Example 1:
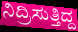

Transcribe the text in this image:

ನಿದ್ರಿಸುತ್ತಿದ್ದ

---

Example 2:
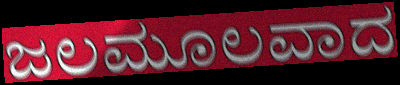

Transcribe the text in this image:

ಜಲಮೂಲವಾದ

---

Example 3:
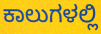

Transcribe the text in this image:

ಕಾಲುಗಳಲ್ಲಿ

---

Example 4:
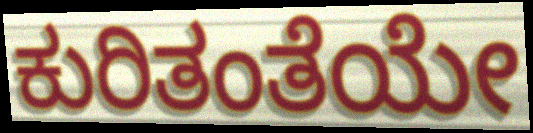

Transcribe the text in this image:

ಕುರಿತಂತೆಯೇ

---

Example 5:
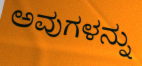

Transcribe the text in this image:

ಅವುಗಳನ್ನು